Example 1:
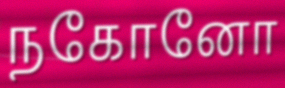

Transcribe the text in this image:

நகோனோ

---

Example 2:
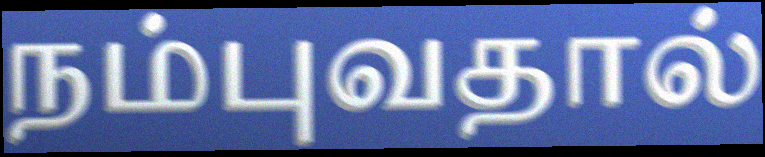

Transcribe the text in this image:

நம்புவதால்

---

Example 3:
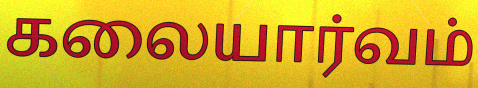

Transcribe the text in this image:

கலையார்வம்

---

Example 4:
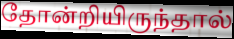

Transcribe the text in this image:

தோன்றியிருந்தால்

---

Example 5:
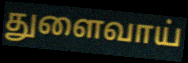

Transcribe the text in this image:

துளைவாய்